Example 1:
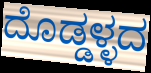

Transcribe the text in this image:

ದೊಡ್ಡಳ್ಳದ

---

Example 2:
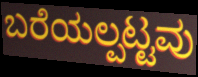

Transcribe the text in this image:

ಬರೆಯಲ್ಪಟ್ಟವು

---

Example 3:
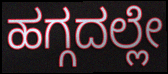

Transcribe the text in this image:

ಹಗ್ಗದಲ್ಲೇ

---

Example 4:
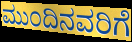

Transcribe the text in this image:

ಮುಂದಿನವರಿಗೆ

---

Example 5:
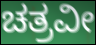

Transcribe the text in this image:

ಚತ್ರವೀ